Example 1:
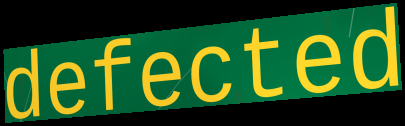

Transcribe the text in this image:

defected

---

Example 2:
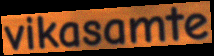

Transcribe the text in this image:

vikasamte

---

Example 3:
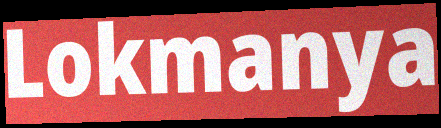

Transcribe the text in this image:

Lokmanya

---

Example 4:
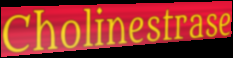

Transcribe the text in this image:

Cholinestrase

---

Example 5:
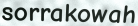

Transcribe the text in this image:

sorrakowah